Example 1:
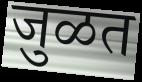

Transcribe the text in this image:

जुळत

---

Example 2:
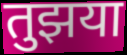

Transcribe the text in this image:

तुझया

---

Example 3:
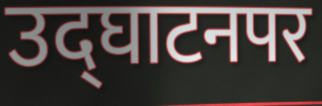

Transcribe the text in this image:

उद्घाटनपर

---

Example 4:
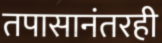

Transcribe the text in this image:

तपासानंतरही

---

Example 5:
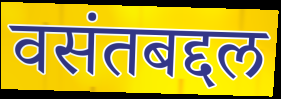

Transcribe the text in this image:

वसंतबद्दल